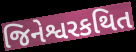
જિનેશ્વરકથિત